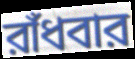
রাঁধবার